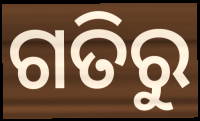
ଗତିରୁ